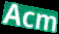
Acm